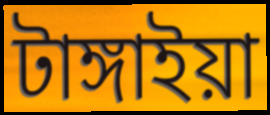
টাঙ্গাইয়া